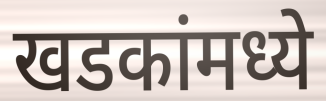
खडकांमध्ये